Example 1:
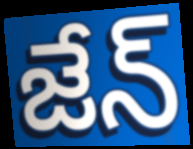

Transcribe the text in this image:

జేన్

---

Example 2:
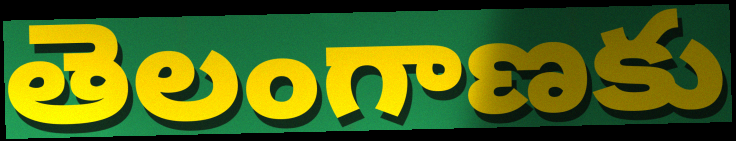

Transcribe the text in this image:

తెలంగాణకు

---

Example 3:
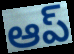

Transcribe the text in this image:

ఆప్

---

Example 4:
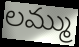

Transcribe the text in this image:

లమ్ము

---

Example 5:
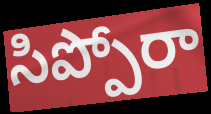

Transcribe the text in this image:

సిప్పోరా